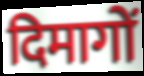
दिमागों